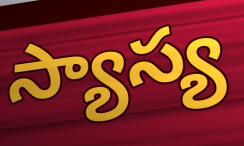
స్యాస్య